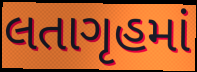
લતાગૃહમાં